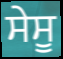
ਸੇਸੂ